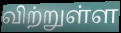
விற்றுள்ள